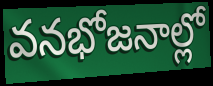
వనభోజనాల్లో